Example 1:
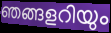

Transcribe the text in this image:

ഞങ്ങളറിയും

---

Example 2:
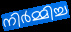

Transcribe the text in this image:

നിർമ്മിച്ച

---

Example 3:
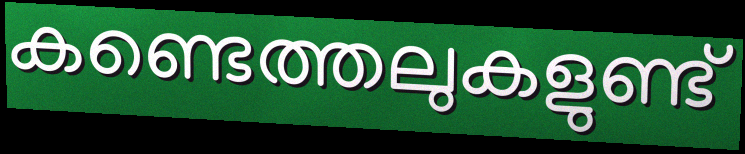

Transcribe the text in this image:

കണ്ടെത്തലുകളുണ്ട്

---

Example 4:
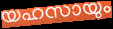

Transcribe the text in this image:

യഹസായും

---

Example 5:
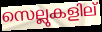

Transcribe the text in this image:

സെല്ലുകളില്